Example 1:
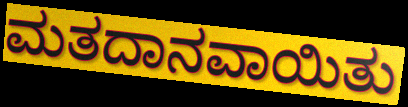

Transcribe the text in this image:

ಮತದಾನವಾಯಿತು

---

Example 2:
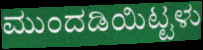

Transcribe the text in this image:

ಮುಂದಡಿಯಿಟ್ಟಳು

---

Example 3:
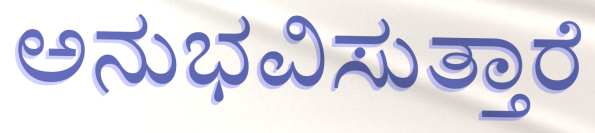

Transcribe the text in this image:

ಅನುಭವಿಸುತ್ತಾರೆ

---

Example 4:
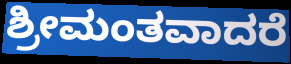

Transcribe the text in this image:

ಶ್ರೀಮಂತವಾದರೆ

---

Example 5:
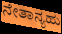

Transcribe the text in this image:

ನೇತಾನ್ಯಹು